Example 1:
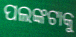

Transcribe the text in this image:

ପଲଙ୍କଟାକୁ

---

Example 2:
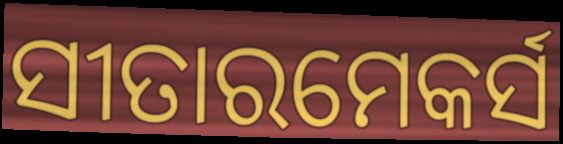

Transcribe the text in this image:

ସୀତାରମେକର୍ସ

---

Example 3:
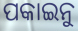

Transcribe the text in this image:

ପକାଇନୁ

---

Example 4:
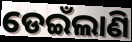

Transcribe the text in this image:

ଡେଇଁଲାଣି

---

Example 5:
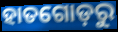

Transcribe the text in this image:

ହାତଗୋଡ଼ରୁ